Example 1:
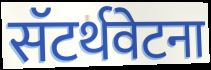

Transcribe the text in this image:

सॅटर्थवेटना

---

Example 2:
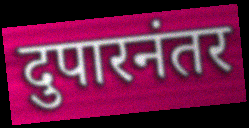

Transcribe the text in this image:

दुपारनंतर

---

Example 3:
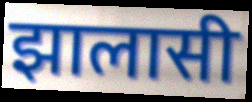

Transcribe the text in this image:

झालासी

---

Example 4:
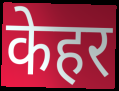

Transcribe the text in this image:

केहर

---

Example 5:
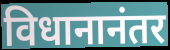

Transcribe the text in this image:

विधानानंतर